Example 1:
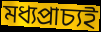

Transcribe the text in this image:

মধ্যপ্রাচ্যই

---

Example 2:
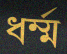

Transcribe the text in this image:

ধর্ম্ম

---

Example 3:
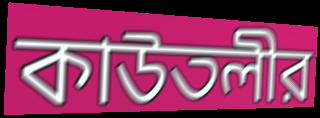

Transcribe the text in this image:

কাউতলীর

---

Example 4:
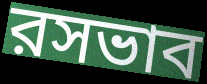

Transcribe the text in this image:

রসভাব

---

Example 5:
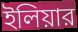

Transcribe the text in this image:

ইলিয়ার